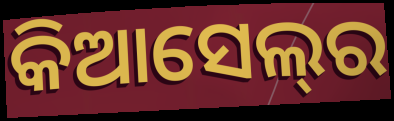
କିଆସେଲ୍‌ର